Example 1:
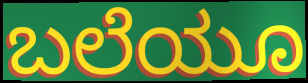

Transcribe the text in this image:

ಬಲೆಯೂ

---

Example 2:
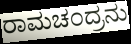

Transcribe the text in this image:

ರಾಮಚಂದ್ರನು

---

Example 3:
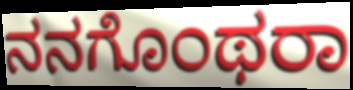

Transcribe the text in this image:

ನನಗೊಂಥರಾ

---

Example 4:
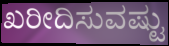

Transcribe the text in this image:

ಖರೀದಿಸುವಷ್ಟು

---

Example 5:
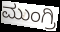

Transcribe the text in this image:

ಮುಂಗ್ರಿ